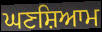
ਘਣਸ਼ਿਆਮ